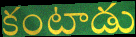
కంటాడు